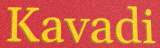
Kavadi